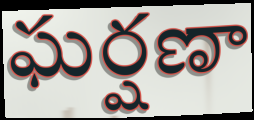
ఘర్షణా